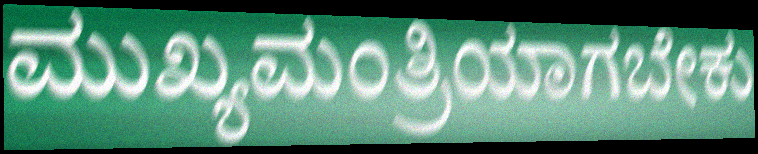
ಮುಖ್ಯಮಂತ್ರಿಯಾಗಬೇಕು